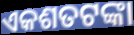
ଏକଶତଟଙ୍କା